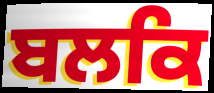
ਬਲਕਿ